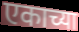
एकाच्या